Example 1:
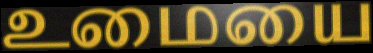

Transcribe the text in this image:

உமையை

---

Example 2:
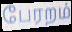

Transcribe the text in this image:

பேரறம்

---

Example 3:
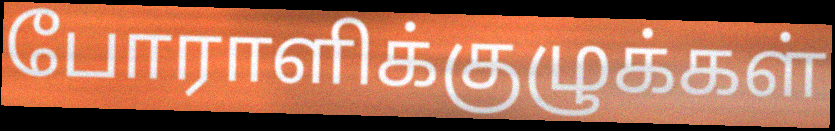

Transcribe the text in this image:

போராளிக்குழுக்கள்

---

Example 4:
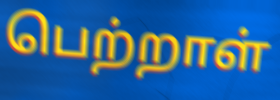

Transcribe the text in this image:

பெற்றாள்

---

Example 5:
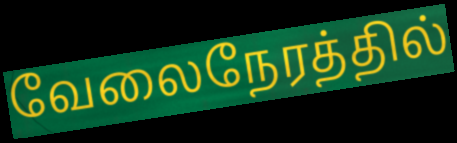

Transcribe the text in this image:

வேலைநேரத்தில்